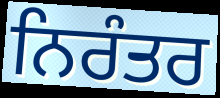
ਨਿਰੰਤਰ